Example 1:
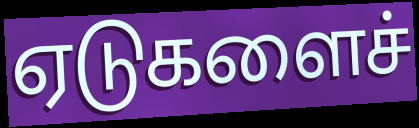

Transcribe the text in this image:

ஏடுகளைச்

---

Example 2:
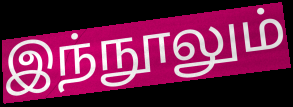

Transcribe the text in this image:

இந்நூலும்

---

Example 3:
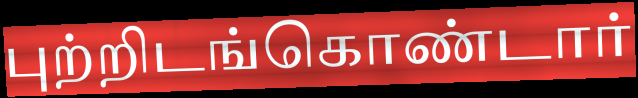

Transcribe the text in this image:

புற்றிடங்கொண்டார்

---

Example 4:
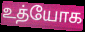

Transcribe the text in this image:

உத்யோக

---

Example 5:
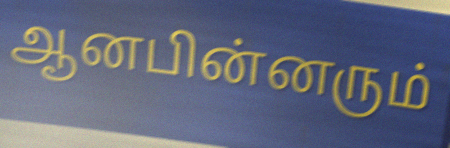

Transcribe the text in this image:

ஆனபின்னரும்